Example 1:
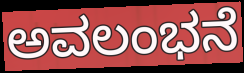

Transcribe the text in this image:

ಅವಲಂಭನೆ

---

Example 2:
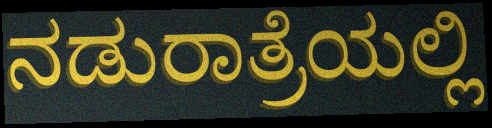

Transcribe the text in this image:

ನಡುರಾತ್ರೆಯಲ್ಲಿ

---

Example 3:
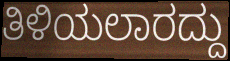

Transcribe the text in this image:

ತಿಳಿಯಲಾರದ್ದು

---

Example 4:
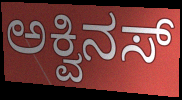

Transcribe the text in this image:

ಅಕ್ವಿನಸ್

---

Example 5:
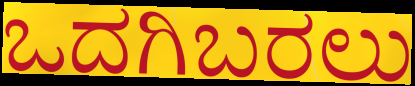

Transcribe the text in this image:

ಒದಗಿಬರಲು